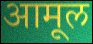
आमूल